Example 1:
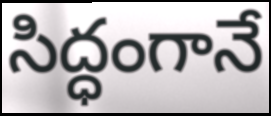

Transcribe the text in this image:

సిద్ధంగానే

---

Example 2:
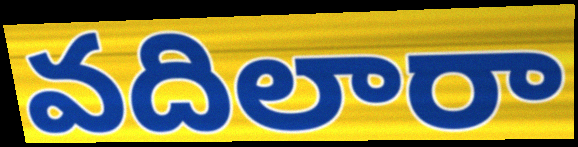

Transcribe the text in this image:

వదిలారా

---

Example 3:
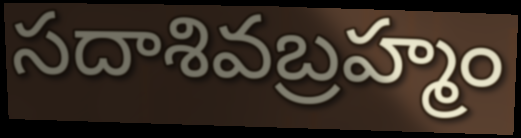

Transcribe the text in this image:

సదాశివబ్రహ్మం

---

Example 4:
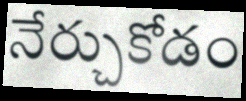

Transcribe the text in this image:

నేర్చుకోడం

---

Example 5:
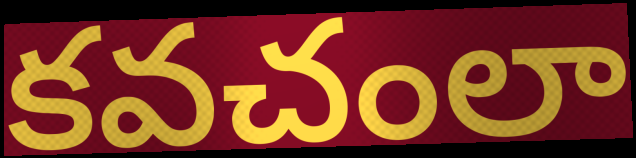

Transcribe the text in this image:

కవచంలా